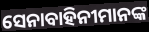
ସେନାବାହିନୀମାନଙ୍କ